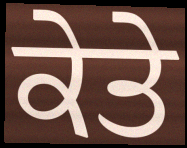
ਕੇਤੇ